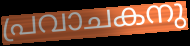
പ്രവാചകനു